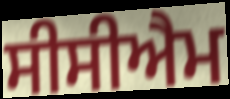
ਸੀਸੀਐਮ